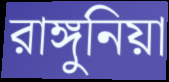
রাঙ্গুনিয়া